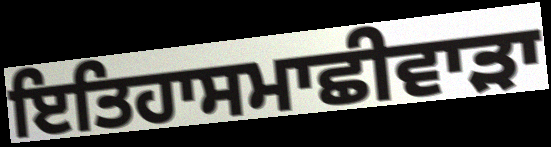
ਇਤਿਹਾਸਮਾਛੀਵਾੜਾ